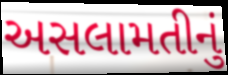
અસલામતીનું